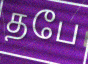
தபே